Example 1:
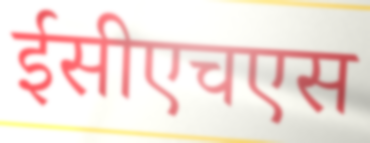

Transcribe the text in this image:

ईसीएचएस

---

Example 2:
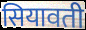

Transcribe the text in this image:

सियावती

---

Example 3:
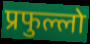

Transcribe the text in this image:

प्रफुल्लो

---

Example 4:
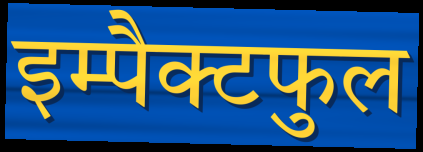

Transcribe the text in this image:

इम्पैक्टफुल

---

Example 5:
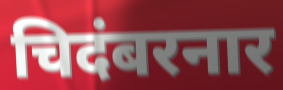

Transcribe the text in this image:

चिदंबरनार